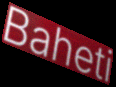
Baheti